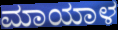
ಮಾಯಾಳ